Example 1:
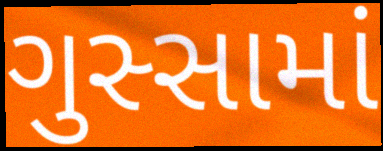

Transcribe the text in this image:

ગુસ્સામાં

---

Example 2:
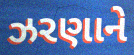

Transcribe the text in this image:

ઝરણાને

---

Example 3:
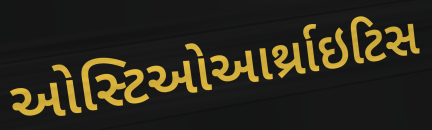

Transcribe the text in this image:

ઓસ્ટિઓઆર્થ્રાઇટિસ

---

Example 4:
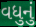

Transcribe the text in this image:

વધુનું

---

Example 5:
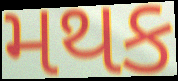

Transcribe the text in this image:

મથક